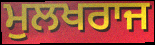
ਮੁਲਖਰਾਜ